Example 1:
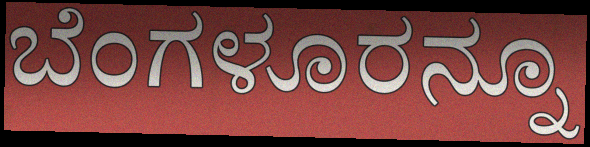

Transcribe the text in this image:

ಬೆಂಗಳೂರನ್ನೂ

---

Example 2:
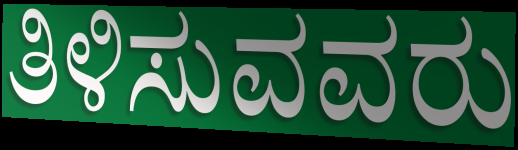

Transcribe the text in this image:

ತಿಳಿಸುವವರು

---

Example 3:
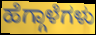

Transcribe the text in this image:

ಹೆಗ್ಗಾಳೆಗಳು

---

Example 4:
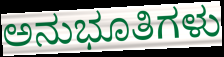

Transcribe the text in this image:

ಅನುಭೂತಿಗಳು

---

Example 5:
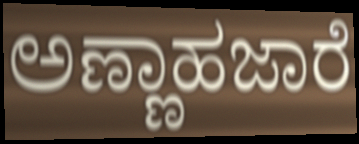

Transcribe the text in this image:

ಅಣ್ಣಾಹಜಾರೆ